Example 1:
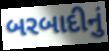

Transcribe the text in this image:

બરબાદીનું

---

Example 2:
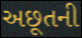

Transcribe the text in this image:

અછૂતની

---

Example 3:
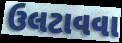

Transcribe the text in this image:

ઉલટાવવા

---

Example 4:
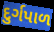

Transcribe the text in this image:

દુર્ગપાળ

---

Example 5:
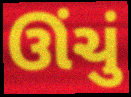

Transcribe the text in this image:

ઊંચું